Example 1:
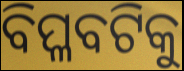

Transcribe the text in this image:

ବିପ୍ଳବଟିକୁ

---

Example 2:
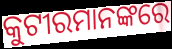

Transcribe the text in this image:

କୁଟୀରମାନଙ୍କରେ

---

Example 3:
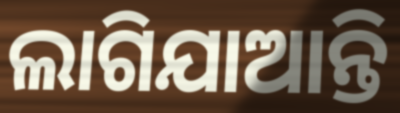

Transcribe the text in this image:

ଲାଗିଯାଆନ୍ତି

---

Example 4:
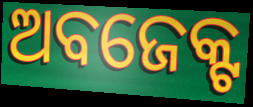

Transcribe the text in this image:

ଅବଜେକ୍ଟ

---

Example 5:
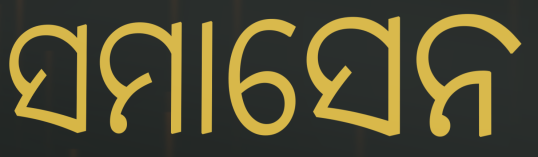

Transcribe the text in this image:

ସମାସେନ